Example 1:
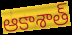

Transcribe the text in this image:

ఆకాశాత్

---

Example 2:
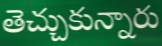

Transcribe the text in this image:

తెచ్చుకున్నారు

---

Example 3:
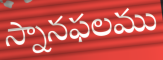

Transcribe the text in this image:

స్నానఫలము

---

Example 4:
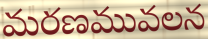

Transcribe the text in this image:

మరణమువలన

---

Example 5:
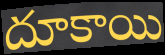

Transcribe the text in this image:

దూకాయి